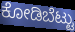
ಕೋಡಿಬೆಟ್ಟು